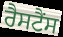
ਰੈਸਟੈਂਸ